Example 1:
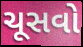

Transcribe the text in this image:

ચૂસવો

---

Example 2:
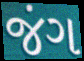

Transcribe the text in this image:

જંગ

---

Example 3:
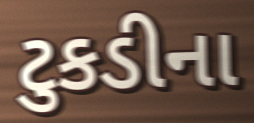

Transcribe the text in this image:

ટુકડીના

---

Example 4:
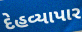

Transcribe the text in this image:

દેહવ્યાપાર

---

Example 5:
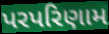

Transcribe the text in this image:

પરપરિણામ